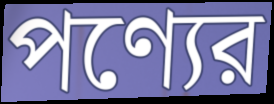
পণ্যের